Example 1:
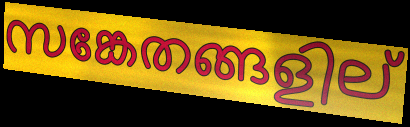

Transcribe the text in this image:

സങ്കേതങ്ങളില്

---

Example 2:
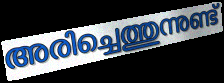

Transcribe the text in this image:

അരിച്ചെത്തുന്നുണ്ട്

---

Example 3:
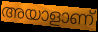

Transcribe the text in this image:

അയാളാണ്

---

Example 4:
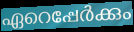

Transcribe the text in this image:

ഏറെപ്പേർക്കും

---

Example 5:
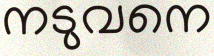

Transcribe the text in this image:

നടുവനെ